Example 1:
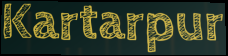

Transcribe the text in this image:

Kartarpur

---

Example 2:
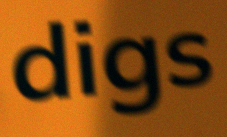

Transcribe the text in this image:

digs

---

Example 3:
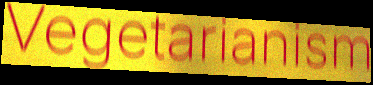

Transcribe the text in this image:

Vegetarianism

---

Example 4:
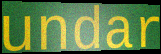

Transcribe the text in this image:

undar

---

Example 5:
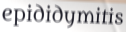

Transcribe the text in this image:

epididymitis